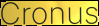
Cronus